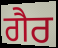
ਗੈਰ